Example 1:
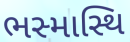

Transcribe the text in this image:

ભસ્માસ્થિ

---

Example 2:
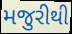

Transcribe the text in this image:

મજુરીથી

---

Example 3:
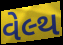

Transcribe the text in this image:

વેલ્થ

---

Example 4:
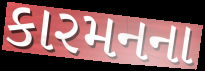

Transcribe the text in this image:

કારમનના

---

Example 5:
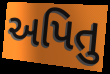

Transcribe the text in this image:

અપિતુ